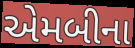
એમબીના